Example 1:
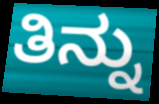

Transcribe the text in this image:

ತಿನ್ನು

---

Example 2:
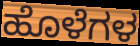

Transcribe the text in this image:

ಹೊಳೆಗಳ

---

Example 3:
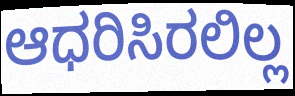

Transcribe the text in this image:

ಆಧರಿಸಿರಲಿಲ್ಲ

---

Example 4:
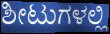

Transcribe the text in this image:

ಶೀಟುಗಳಲ್ಲಿ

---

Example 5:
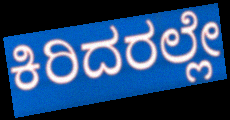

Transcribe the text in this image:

ಕಿರಿದರಲ್ಲೇ